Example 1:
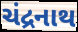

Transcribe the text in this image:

ચંદ્રનાથ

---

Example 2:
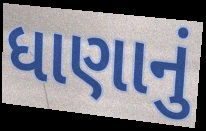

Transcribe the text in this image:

ધાણાનું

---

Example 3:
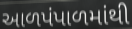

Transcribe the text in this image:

આળપંપાળમાંથી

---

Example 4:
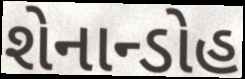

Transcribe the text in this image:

શેનાન્ડોહ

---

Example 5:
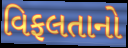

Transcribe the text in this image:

વિફલતાનો